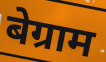
बेग्राम